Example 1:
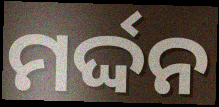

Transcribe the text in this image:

ମର୍ଦ୍ଦନ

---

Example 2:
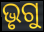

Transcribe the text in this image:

ଭୃଗୁ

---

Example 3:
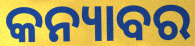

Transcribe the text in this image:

କନ୍ୟାବର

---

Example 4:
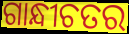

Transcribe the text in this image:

ଗାନ୍ଧୀଚତର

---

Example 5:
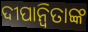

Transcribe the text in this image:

ଦୀପାନ୍ୱିତାଙ୍କ